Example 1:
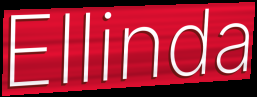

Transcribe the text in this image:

Ellinda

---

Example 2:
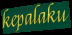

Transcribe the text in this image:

kepalaku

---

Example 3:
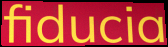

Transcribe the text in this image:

fiducia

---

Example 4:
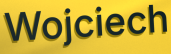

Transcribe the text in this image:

Wojciech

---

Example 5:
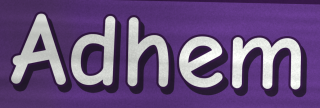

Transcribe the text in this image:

Adhem